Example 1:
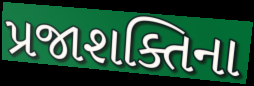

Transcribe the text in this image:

પ્રજાશક્તિના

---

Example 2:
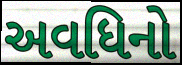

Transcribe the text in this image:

અવધિનો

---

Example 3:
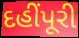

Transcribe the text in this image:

દહીંપૂરી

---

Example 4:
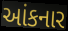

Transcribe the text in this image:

આંકનાર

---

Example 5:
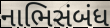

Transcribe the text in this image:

નાભિસંબંધ